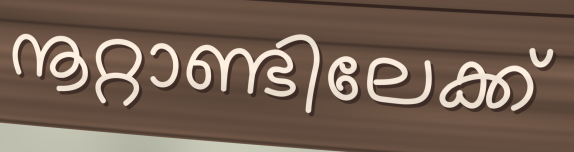
നൂറ്റാണ്ടിലേക്ക്